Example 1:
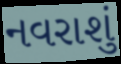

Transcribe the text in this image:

નવરાશું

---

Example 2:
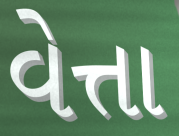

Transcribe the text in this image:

વેત્તા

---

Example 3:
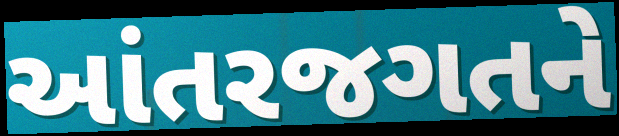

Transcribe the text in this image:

આંતરજગતને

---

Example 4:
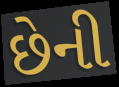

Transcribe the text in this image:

છેની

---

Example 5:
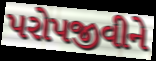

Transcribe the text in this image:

પરોપજીવીને